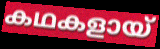
കഥകളായ്